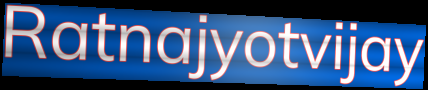
Ratnajyotvijay